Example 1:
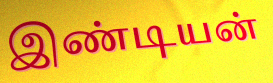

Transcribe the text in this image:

இண்டியன்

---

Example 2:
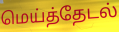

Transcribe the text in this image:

மெய்த்தேடல்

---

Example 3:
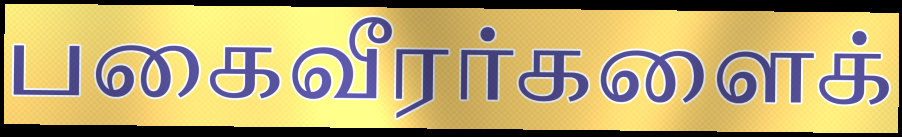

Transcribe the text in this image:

பகைவீரர்களைக்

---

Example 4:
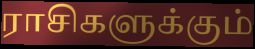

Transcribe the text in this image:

ராசிகளுக்கும்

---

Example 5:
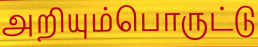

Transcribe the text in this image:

அறியும்பொருட்டு